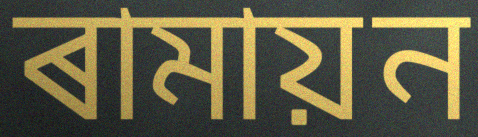
ৰামায়ন